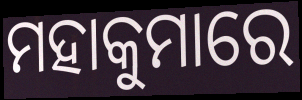
ମହାକୁମାରେ